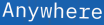
Anywhere